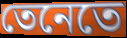
তেনেতে